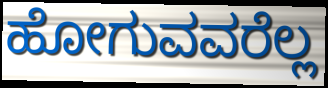
ಹೋಗುವವರೆಲ್ಲ